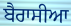
ਬੈਰਾਸੀਆ